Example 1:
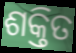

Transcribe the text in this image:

ଶକ୍ତିତ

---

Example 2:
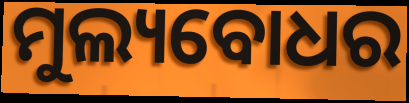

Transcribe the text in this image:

ମୁଲ୍ୟବୋଧର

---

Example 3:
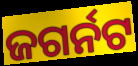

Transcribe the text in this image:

ଜଗର୍ନଟ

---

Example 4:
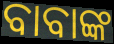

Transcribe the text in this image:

ବାବାଙ୍କ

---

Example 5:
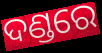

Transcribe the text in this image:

ଦଣ୍ଡରେ